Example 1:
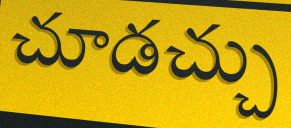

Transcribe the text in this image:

చూడచ్చు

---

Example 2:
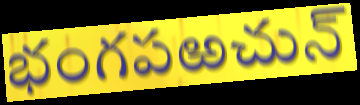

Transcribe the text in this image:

భంగపఱచున్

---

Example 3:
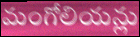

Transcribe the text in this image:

మంగోలియన్లు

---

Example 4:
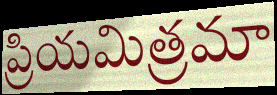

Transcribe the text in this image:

ప్రియమిత్రమా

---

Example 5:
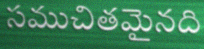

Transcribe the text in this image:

సముచితమైనది